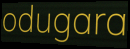
odugara